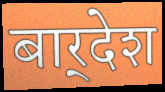
बार्देश